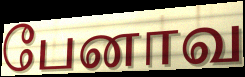
பேனாவ